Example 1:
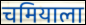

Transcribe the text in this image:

चमियाला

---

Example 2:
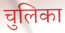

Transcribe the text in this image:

चुलिका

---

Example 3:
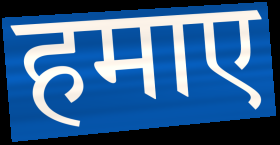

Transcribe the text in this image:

हमाए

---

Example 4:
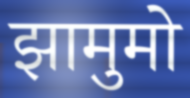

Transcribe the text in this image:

झामुमो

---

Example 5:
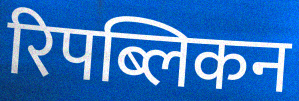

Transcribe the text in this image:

रिपब्लिकन